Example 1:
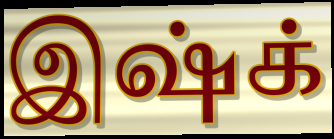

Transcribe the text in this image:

இஷ்க்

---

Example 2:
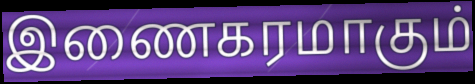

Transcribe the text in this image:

இணைகரமாகும்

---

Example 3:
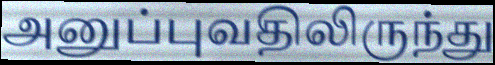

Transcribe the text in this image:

அனுப்புவதிலிருந்து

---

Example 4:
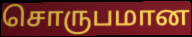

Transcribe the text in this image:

சொருபமான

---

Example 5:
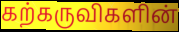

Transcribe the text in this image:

கற்கருவிகளின்